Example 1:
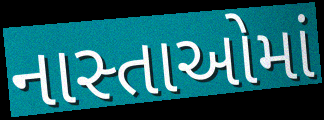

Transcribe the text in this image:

નાસ્તાઓમાં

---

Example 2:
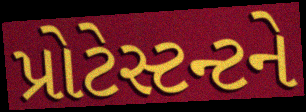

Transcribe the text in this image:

પ્રોટેસ્ટન્ટને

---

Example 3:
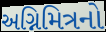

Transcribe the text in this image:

અગ્નિમિત્રનો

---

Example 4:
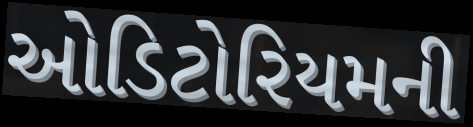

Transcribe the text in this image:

ઓડિટોરિયમની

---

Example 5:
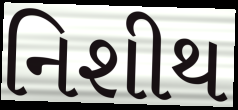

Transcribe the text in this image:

નિશીથ